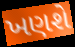
ખણશે